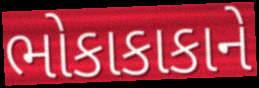
ભોકાકાકાને